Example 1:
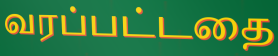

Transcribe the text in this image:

வரப்பட்டதை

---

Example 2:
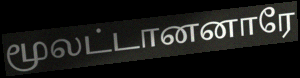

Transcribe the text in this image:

மூலட்டானனாரே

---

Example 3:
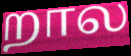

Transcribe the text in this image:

றால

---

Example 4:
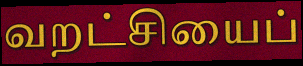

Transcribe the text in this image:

வறட்சியைப்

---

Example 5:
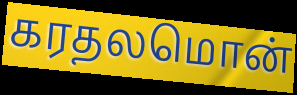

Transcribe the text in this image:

கரதலமொன்